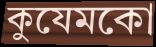
কুযেমকো